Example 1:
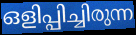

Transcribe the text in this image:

ഒളിപ്പിച്ചിരുന്ന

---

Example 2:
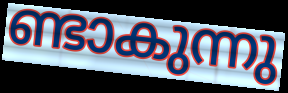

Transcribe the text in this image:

ണ്ടാകുന്നു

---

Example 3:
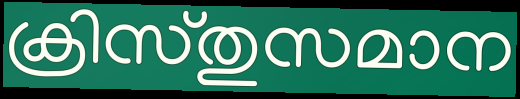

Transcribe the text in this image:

ക്രിസ്തുസമാന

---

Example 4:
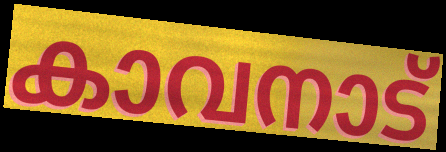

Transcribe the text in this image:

കാവനാട്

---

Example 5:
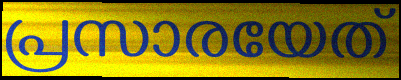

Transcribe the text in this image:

പ്രസാരയേത്